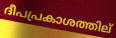
ദീപപ്രകാശത്തില്